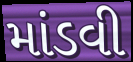
માંડવી